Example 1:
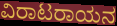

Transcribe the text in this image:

ವಿರಾಟರಾಯನ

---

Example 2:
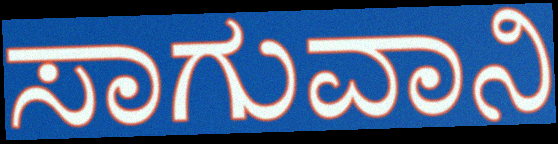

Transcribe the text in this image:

ಸಾಗುವಾನಿ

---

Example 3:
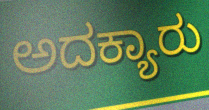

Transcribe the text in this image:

ಅದಕ್ಯಾರು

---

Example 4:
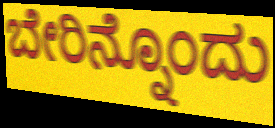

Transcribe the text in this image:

ಬೇರಿನ್ನೊಂದು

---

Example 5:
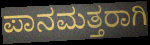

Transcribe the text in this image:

ಪಾನಮತ್ತರಾಗಿ